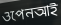
ওপেনআই